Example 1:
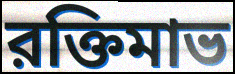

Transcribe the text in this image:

রক্তিমাভ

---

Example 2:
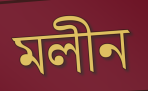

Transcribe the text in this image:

মলীন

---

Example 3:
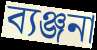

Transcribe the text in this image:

ব্যঞ্জনা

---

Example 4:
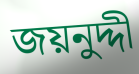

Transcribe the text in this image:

জয়নুদ্দী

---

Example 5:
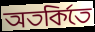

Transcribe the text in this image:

অতর্কিতে